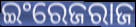
ଇଂରେଜରାଜ